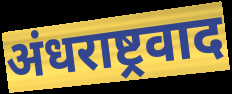
अंधराष्ट्रवाद